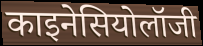
काइनेसियोलॉजी